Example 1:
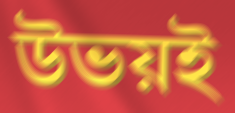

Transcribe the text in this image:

উভয়ই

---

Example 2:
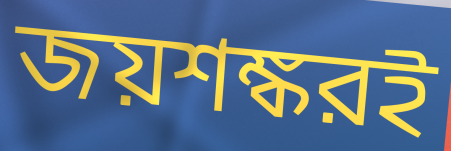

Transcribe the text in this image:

জয়শঙ্করই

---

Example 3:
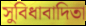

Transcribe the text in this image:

সুবিধাবাদিতা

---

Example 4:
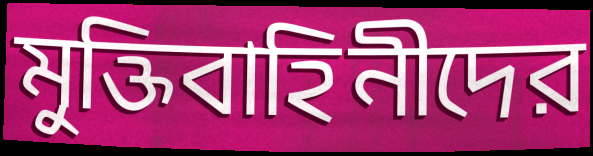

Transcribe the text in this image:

মুক্তিবাহিনীদের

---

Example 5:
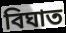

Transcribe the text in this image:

বিঘাত